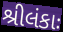
શ્રીલંકાઃ